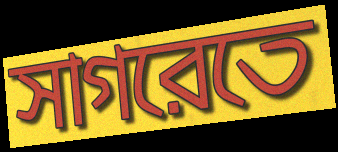
সাগরেতে